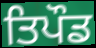
ਤਿਪੌਡ